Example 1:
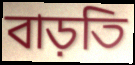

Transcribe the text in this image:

বাড়তি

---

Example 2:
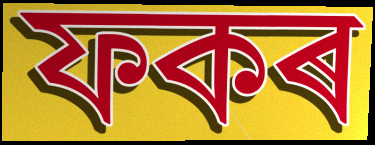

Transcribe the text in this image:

ফকৰ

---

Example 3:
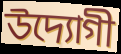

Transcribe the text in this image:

উদ্যোগী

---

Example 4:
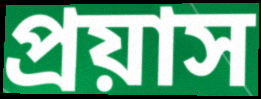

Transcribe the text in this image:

প্ৰয়াস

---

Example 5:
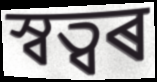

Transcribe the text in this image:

স্বত্বৰ